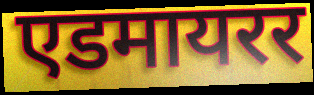
एडमायरर